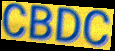
CBDC